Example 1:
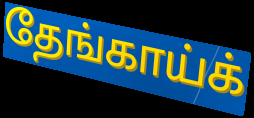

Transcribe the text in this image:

தேங்காய்க்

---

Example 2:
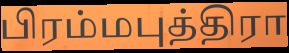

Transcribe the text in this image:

பிரம்மபுத்திரா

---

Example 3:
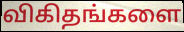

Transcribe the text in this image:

விகிதங்களை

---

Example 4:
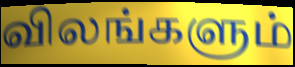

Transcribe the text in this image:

விலங்களும்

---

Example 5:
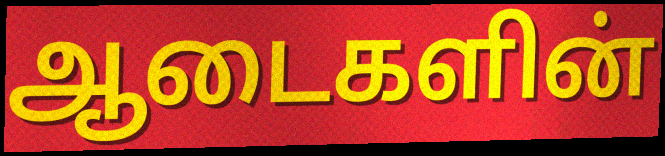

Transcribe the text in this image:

ஆடைகளின்